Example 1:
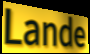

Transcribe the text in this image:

Lande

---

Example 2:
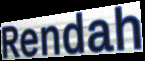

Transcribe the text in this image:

Rendah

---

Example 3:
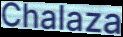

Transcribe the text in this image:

Chalaza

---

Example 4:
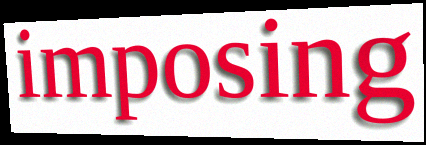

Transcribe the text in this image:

imposing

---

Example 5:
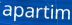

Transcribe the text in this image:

apartim